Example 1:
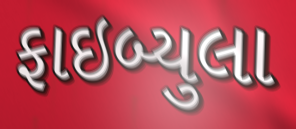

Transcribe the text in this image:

ફાઇબ્યુલા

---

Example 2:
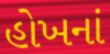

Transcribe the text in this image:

હોખનાં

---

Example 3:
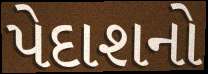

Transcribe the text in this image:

પેદાશનો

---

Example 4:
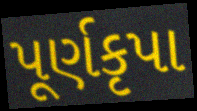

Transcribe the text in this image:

પૂર્ણકૃપા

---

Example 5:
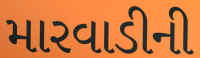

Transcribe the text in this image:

મારવાડીની